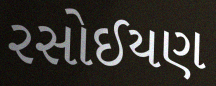
રસોઈયણ